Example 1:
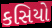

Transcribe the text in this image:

કસિયો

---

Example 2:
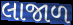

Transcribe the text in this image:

લાજાળ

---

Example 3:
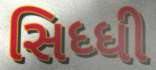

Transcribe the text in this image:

સિધ્ધી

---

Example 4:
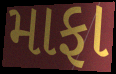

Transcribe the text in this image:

માફા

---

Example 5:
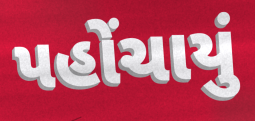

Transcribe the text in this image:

પહોંચાયું